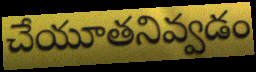
చేయూతనివ్వడం